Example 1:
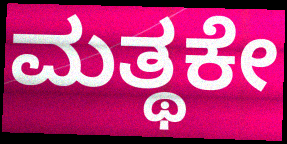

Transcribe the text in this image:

ಮತ್ಥಕೇ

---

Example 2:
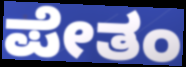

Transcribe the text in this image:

ಪೇತಂ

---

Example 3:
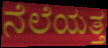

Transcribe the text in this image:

ನೆಲೆಯತ್ತ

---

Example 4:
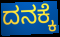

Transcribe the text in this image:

ದನಕ್ಕೆ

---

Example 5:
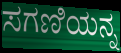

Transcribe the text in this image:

ಸಗಣಿಯನ್ನ